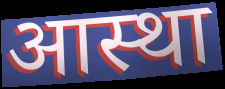
आस्था